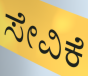
ಸೇವಿಕೆ